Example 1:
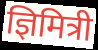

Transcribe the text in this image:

ज्ञिमित्री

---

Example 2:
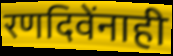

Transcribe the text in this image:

रणदिवेंनाही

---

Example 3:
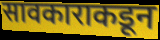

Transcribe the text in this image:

सावकाराकडून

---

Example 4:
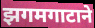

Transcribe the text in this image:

झगमगाटाने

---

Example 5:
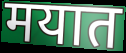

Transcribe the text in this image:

मयात